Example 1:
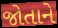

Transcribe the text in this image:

જોતાને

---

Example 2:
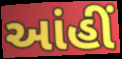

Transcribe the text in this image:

આંહીં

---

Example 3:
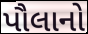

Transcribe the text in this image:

પૌલાનો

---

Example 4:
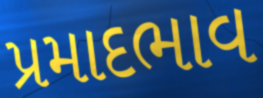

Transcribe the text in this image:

પ્રમાદભાવ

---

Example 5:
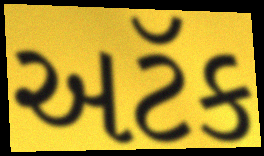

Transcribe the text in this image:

અટૅક